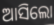
ଆସିଲୋ